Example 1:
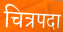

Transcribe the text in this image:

चित्रपदा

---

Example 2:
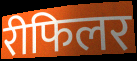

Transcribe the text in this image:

रीफिलर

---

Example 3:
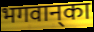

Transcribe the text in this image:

भगवान्‌का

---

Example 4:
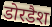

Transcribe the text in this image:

डोरडैश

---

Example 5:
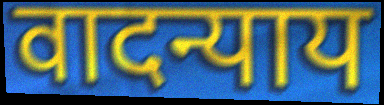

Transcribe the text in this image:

वादन्याय